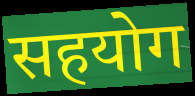
सहयोग